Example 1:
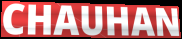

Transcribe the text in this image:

CHAUHAN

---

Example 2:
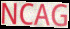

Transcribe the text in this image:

NCAG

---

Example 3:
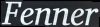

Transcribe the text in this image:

Fenner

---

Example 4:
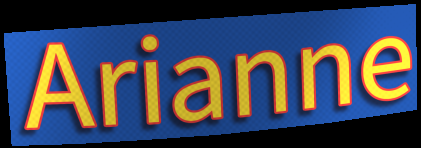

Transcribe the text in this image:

Arianne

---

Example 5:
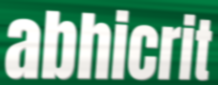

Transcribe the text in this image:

abhicrit